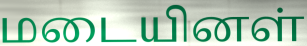
மடையினள்